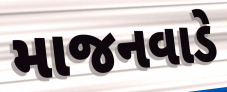
માજનવાડે